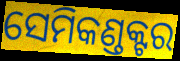
ସେମିକଣ୍ଡକ୍ଟର